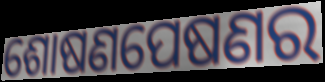
ଶୋଷଣପେଷଣର